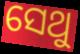
ସେଥୁ